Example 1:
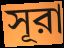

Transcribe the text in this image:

সূরা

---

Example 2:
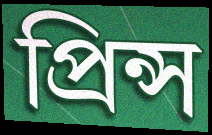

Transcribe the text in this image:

প্রিন্স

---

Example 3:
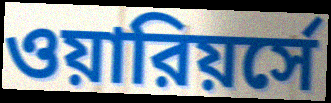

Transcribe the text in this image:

ওয়ারিয়র্সে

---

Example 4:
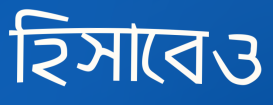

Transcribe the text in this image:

হিসাবেও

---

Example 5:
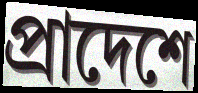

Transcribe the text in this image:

প্রাদেশে